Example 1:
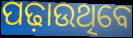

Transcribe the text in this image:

ପଢ଼ାଉଥିବେ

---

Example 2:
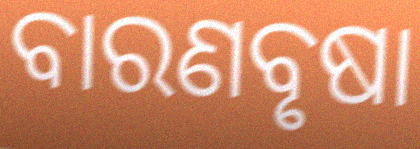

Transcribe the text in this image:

ବାରଣବୃଷା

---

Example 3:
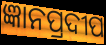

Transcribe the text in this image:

ଜ୍ଞାନପ୍ରଦୀପ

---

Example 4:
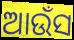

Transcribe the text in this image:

ଆଉଁସ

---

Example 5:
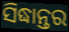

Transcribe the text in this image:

ସିଦ୍ଧାନ୍ତର